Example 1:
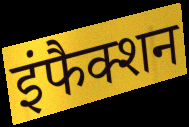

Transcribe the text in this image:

इंफैक्शन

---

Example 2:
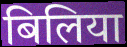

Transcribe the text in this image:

बिलिया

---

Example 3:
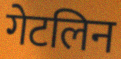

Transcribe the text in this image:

गेटलिन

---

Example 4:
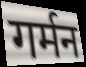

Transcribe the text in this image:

गर्मन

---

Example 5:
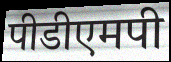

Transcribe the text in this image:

पीडीएमपी